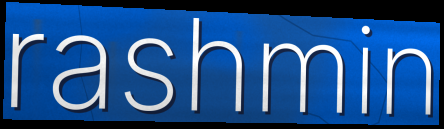
rashmin